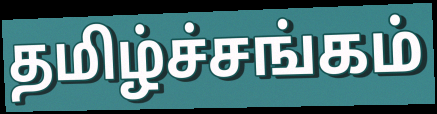
தமிழ்ச்சங்கம்